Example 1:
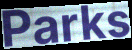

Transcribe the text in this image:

Parks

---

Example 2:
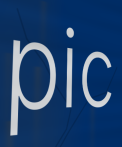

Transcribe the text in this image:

pic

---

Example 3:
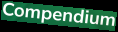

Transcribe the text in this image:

Compendium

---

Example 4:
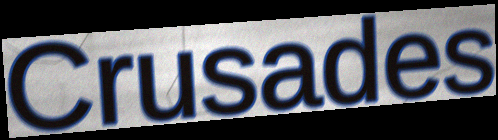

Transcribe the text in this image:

Crusades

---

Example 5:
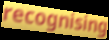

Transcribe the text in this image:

recognising